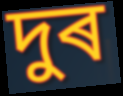
দুৰ